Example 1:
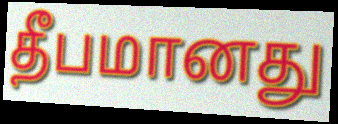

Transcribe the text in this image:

தீபமானது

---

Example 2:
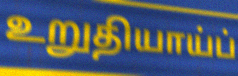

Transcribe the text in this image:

உறுதியாய்ப்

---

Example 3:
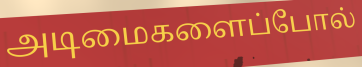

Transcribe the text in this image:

அடிமைகளைப்போல்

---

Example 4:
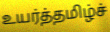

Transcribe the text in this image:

உயர்த்தமிழ்ச்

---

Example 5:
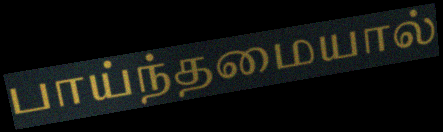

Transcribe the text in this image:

பாய்ந்தமையால்